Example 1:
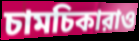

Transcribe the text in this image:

চামচিকারাও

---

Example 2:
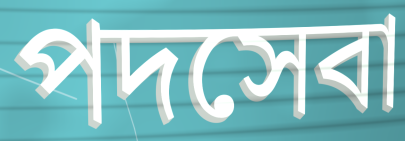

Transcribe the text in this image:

পদসেবা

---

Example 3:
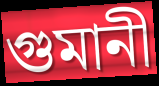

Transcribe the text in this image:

গুমানী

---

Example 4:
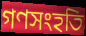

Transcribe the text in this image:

গণসংহতি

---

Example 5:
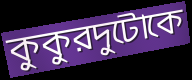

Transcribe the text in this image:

কুকুরদুটোকে